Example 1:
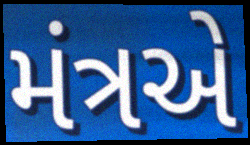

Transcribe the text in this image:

મંત્રએ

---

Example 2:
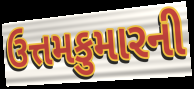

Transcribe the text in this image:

ઉત્તમકુમારની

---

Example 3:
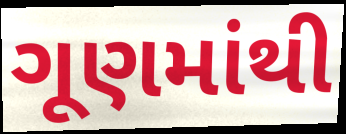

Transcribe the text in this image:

ગૂણમાંથી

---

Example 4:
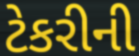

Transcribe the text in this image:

ટેકરીની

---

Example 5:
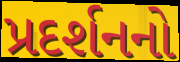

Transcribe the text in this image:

પ્રદર્શનનો